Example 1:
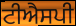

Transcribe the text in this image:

ਟੀਐਸਪੀ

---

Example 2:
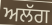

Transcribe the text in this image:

ਅਲੱਗ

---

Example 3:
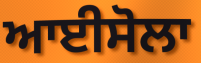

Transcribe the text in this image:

ਆਈਸੋਲਾ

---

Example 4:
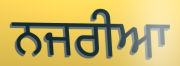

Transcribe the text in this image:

ਨਜਰੀਆ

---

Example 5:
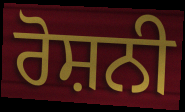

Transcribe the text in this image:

ਰੋਸ਼ਨੀ